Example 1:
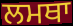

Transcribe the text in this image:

ਲਮਥਾ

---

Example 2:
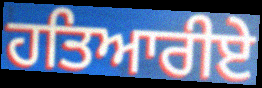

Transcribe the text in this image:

ਹਤਿਆਰੀਏ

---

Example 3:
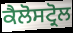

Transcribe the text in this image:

ਕੈਲੋਸਟ੍ਰੋਲ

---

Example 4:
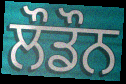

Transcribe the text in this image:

ਲੌਡੌਨ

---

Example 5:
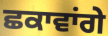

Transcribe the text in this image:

ਛਕਾਵਾਂਗੇ